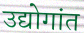
उद्योगांत